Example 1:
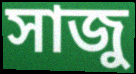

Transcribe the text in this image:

সাজু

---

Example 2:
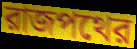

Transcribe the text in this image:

রাজপথের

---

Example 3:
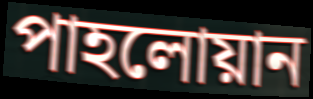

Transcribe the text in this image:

পাহলোয়ান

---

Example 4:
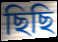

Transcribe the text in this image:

ছিছি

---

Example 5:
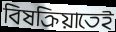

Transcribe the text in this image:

বিষক্রিয়াতেই